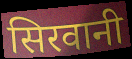
सिरवानी